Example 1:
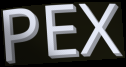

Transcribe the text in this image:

PEX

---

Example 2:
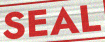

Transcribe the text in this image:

SEAL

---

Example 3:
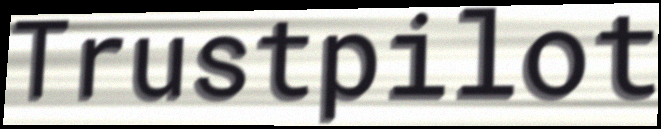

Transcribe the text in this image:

Trustpilot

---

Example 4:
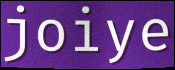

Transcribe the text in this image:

joiye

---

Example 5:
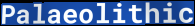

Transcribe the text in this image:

Palaeolithic